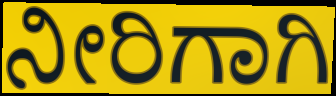
ನೀರಿಗಾಗಿ